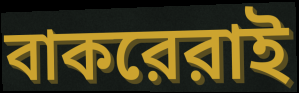
বাকরেরাই